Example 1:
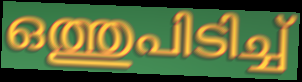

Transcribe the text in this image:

ഒത്തുപിടിച്ച്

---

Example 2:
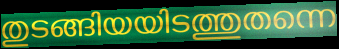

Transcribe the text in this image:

തുടങ്ങിയയിടത്തുതന്നെ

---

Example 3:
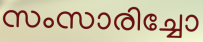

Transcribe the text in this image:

സംസാരിച്ചോ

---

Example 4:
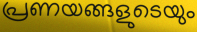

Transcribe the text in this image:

പ്രണയങ്ങളുടെയും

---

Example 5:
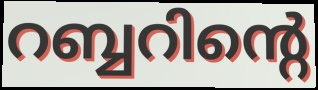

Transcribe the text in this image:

റബ്ബറിന്റെ